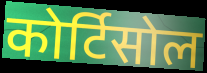
कोर्टिसोल